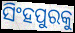
ସିଂହପୁରକୁ